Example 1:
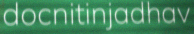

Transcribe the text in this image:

docnitinjadhav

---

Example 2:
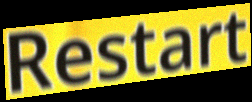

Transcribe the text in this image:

Restart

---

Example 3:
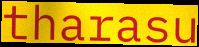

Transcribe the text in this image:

tharasu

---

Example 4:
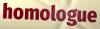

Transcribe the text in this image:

homologue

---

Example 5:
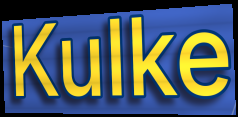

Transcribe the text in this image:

Kulke